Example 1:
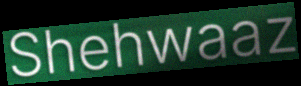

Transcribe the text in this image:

Shehwaaz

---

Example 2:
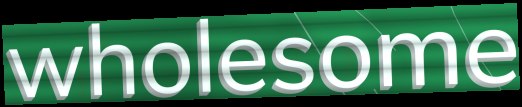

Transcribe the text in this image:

wholesome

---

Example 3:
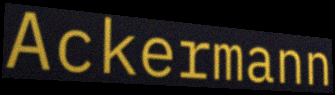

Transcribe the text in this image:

Ackermann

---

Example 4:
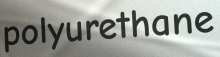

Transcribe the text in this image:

polyurethane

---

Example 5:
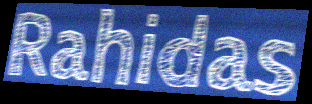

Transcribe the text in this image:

Rahidas